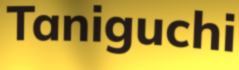
Taniguchi